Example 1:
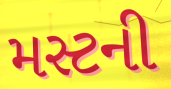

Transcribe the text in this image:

મસ્ટની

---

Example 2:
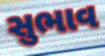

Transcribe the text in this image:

સુભાવ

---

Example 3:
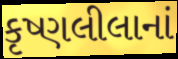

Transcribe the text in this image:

કૃષ્ણલીલાનાં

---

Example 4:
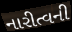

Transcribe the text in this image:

નારીત્વની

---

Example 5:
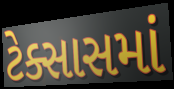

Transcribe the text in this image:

ટેક્સાસમાં